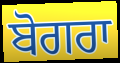
ਬੋਗਰਾ